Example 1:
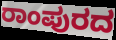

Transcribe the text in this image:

ರಾಂಪುರದ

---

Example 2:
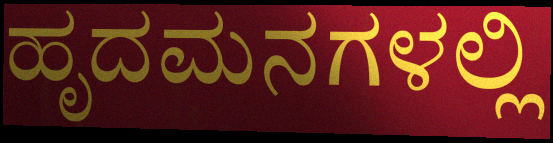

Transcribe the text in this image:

ಹೃದಮನಗಳಲ್ಲಿ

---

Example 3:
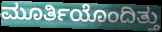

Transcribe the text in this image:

ಮೂರ್ತಿಯೊಂದಿತ್ತು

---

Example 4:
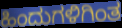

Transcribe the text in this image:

ಹಿಂದುಗಳಿಗಿಂತ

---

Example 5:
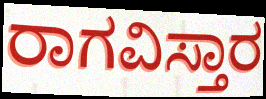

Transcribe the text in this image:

ರಾಗವಿಸ್ತಾರ